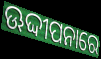
ଊଦ୍ଦୀପନାରେ